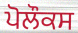
ਪੋਲੌਕਸ